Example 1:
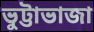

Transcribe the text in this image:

ভুট্টাভাজা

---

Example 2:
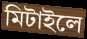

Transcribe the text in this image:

মিটাইলে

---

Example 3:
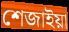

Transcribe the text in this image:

শেজাইয়া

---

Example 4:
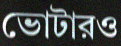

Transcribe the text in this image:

ভোটারও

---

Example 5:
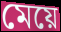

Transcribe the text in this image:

মেয়ে